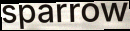
sparrow